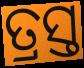
ତ୍ରସ୍ତ